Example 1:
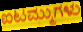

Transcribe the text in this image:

ಐಟಮ್ಮುಗಳು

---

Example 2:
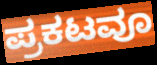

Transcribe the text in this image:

ಪ್ರಕಟವೂ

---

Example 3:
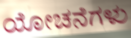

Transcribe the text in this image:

ಯೋಚನೆಗಳು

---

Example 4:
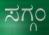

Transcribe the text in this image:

ಸಗ್ಗಂ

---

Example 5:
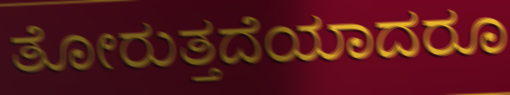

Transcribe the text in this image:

ತೋರುತ್ತದೆಯಾದರೂ